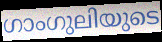
ഗാംഗുലിയുടെ